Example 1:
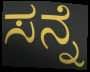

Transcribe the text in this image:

ಸನ್ನೆ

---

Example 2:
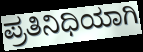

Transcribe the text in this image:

ಪ್ರತಿನಿಧಿಯಾಗಿ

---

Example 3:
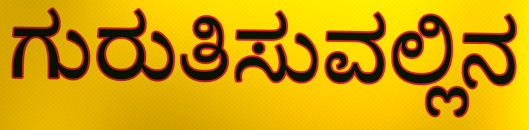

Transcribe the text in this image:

ಗುರುತಿಸುವಲ್ಲಿನ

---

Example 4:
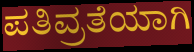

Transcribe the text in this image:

ಪತಿವ್ರತೆಯಾಗಿ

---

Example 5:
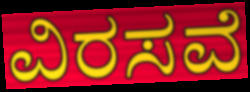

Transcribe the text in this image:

ವಿರಸವೆ